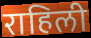
राहिली